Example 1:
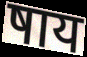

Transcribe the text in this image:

षाय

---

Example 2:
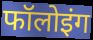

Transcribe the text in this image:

फॉलोइंग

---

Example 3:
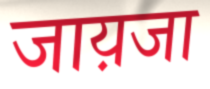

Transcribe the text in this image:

जाय़जा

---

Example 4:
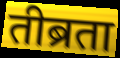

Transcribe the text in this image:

तीब्रता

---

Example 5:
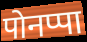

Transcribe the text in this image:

पोनप्‍पा